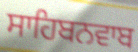
ਸਾਹਿਬਨਵਾਬ